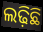
ଲଢ଼ିଛି